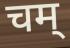
चम्